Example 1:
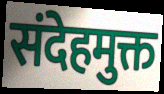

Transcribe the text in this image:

संदेहमुक्त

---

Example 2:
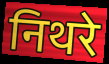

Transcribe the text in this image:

निथरे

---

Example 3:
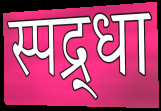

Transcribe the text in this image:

स्पद्र्धा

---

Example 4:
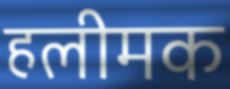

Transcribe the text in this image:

हलीमक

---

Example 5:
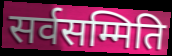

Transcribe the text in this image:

सर्वसम्मिति